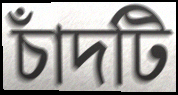
চাঁদটি